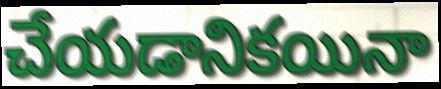
చేయడానికయినా